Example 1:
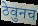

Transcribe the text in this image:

ठेवुनच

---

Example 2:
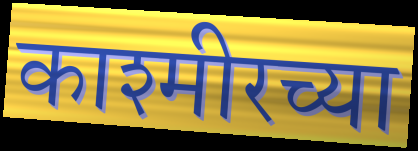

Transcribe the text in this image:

काश्मीरच्या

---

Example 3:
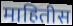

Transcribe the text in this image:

माहितीस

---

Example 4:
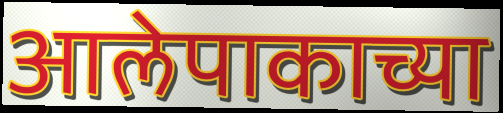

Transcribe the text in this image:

आलेपाकाच्या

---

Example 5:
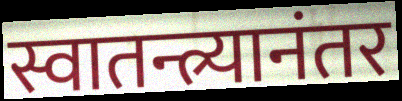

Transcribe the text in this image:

स्वातन्त्र्यानंतर